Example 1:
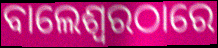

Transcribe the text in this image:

ବାଲେଶ୍ଵରଠାରେ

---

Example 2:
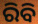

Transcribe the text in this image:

ରିବି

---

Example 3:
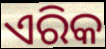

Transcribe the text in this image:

ଏରିକ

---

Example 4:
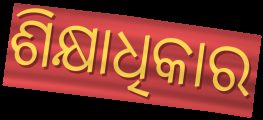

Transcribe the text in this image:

ଶିକ୍ଷାଧିକାର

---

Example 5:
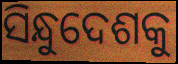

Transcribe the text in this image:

ସିନ୍ଧୁଦେଶକୁ